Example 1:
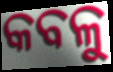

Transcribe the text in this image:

କବଳୁ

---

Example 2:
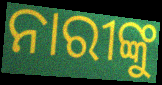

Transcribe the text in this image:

ନାରୀଙ୍କୁ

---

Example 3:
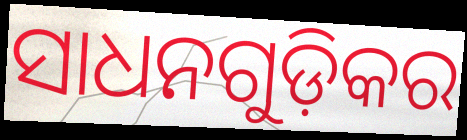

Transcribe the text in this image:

ସାଧନଗୁଡ଼ିକର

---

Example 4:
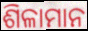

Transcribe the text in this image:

ଶିଳାମାନ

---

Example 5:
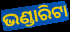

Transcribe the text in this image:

ଭଣ୍ଡାରିଟା